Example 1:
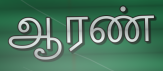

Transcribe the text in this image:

ஆரண்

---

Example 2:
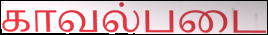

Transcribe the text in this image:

காவல்படை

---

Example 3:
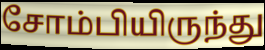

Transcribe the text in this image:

சோம்பியிருந்து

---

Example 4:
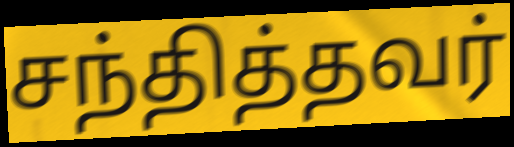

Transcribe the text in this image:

சந்தித்தவர்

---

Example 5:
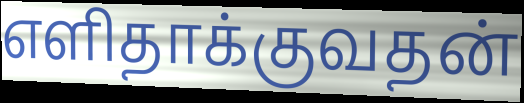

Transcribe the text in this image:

எளிதாக்குவதன்